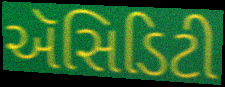
ઍસિડિટી